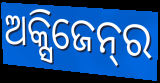
ଅକ୍ସିଜେନ୍‌ର